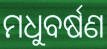
ମଧୁବର୍ଷଣ